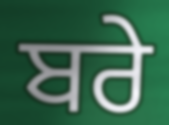
ਬਰੇ